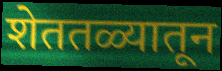
शेततळ्यातून